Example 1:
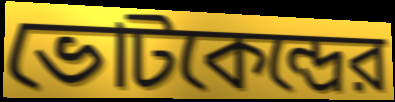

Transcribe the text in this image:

ভোটকেন্দ্রের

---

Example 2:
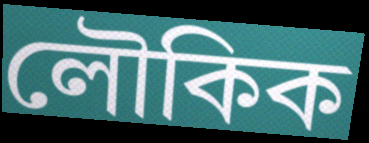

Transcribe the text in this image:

লৌকিক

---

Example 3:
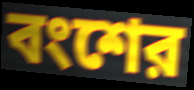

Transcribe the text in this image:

বংশের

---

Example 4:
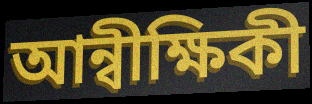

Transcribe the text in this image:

আন্বীক্ষিকী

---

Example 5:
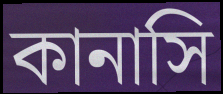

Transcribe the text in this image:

কানাসি